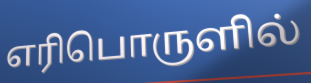
எரிபொருளில்